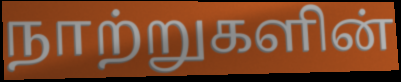
நாற்றுகளின்